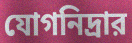
যোগনিদ্রার